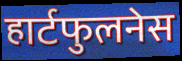
हार्टफुलनेस